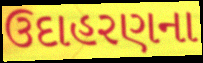
ઉદાહરણના